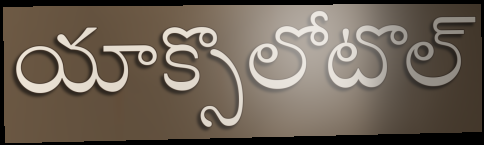
యాక్సొలోటొల్